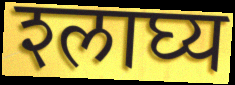
श्लाघ्य